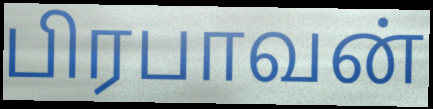
பிரபாவன்